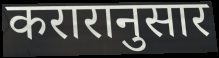
करारानुसार